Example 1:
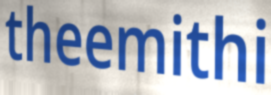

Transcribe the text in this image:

theemithi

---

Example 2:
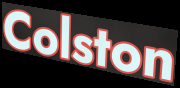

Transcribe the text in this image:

Colston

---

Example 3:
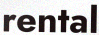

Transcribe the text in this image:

rental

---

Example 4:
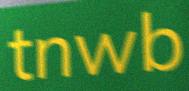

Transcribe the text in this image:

tnwb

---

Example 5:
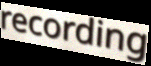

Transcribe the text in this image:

recording